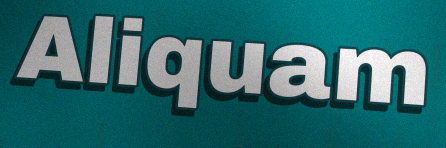
Aliquam